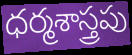
ధర్మశాస్త్రపు